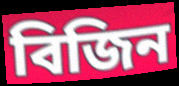
বিজিন